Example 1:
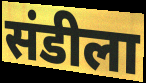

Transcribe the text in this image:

संडीला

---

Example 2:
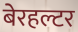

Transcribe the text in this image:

बेरहल्टर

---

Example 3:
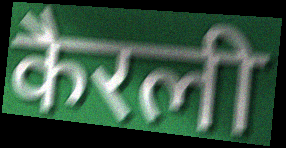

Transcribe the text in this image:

कैरली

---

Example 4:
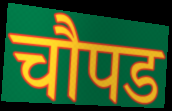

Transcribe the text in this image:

चौपड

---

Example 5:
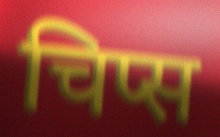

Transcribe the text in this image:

चिप्‍स